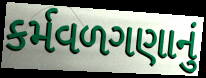
કર્મવળગણાનું